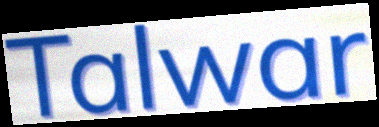
Talwar